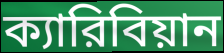
ক্যারিবিয়ান